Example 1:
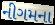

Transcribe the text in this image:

નીગમના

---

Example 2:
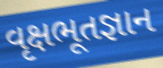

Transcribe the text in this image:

વૃક્ષભૂતજ્ઞાન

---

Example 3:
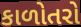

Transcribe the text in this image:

કાળોતરો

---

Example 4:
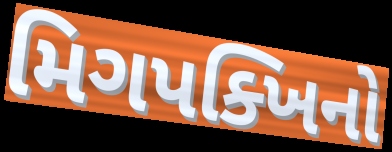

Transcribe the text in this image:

મિગપક્ખિનો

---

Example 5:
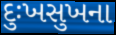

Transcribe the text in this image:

દુઃખસુખના